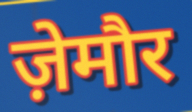
ज़ेमौर